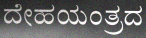
ದೇಹಯಂತ್ರದ